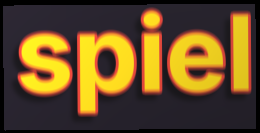
spiel